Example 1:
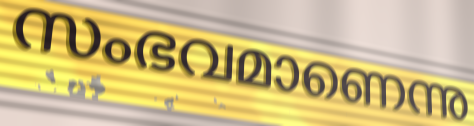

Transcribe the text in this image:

സംഭവമാണെന്നു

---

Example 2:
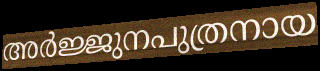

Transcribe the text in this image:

അർജ്ജുനപുത്രനായ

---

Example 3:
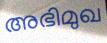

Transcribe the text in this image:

അഭിമുഖ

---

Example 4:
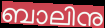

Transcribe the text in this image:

ബാലിനു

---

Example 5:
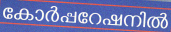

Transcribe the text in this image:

കോർപ്പറേഷനിൽ